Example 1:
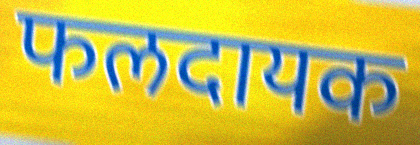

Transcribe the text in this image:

फलदायक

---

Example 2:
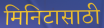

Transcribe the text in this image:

मिनिटासाठी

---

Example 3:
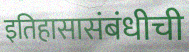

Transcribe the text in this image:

इतिहासासंबंधीची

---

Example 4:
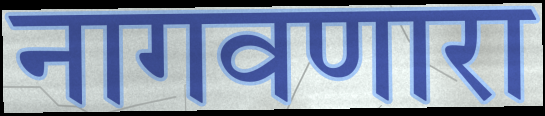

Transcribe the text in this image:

नागवणारा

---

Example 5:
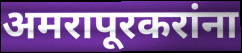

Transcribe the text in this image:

अमरापूरकरांना